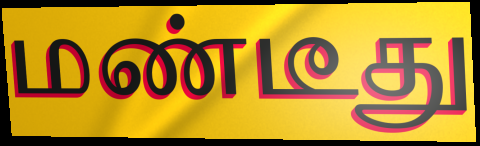
மண்டீது